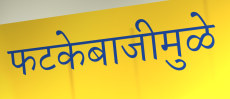
फटकेबाजीमुळे